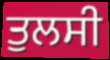
ਤੁਲਸੀ